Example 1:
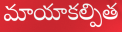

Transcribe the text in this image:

మాయాకల్పిత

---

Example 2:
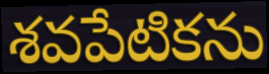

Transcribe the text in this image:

శవపేటికను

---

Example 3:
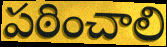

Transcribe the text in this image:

పఠించాలి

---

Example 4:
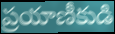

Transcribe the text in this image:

ప్రయాణీకుడి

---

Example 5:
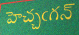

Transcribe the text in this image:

హెచ్చఁగన్